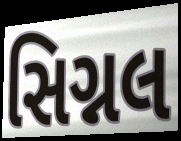
સિગ્નલ